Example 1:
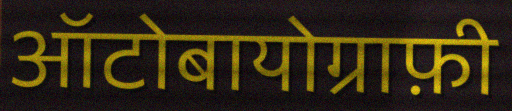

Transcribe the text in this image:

ऑटोबायोग्राफ़ी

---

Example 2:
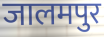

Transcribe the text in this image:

जालमपुर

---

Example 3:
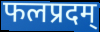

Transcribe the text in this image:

फलप्रदम्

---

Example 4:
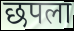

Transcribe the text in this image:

छपला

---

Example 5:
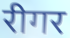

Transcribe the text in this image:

रीगर